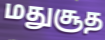
மதுசூத